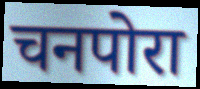
चनपोरा